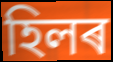
হিলৰ